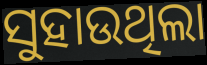
ସୁହାଉଥିଲା